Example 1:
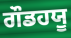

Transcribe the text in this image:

ਗੌਡਹਯੂ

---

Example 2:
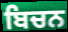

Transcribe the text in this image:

ਬਿਚਨ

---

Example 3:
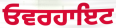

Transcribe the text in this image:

ਓਵਰਹਾਇਟ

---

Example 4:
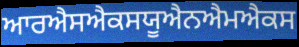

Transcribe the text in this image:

ਆਰਐਸਐਕਸਯੂਐਨਐਮਐਕਸ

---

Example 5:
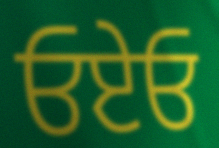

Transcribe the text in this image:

ਓਏਓ